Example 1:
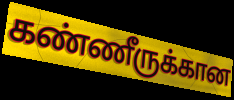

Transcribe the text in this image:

கண்ணீருக்கான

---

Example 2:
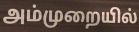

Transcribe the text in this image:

அம்முறையில்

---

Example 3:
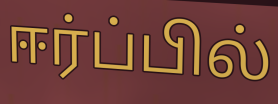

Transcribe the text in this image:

ஈர்ப்பில்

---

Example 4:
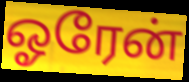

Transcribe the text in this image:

ஓரேன்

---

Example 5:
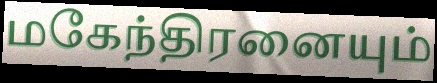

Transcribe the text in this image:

மகேந்திரனையும்